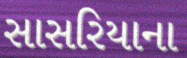
સાસરિયાના